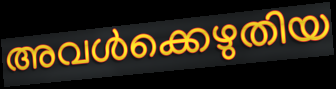
അവൾക്കെഴുതിയ